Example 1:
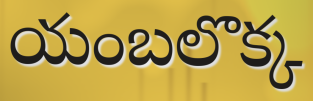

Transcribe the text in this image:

యంబలొక్క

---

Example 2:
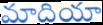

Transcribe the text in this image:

మాదియా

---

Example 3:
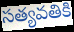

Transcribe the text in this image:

సత్యవతికి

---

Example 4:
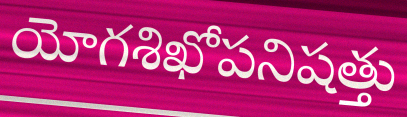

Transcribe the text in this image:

యోగశిఖోపనిషత్తు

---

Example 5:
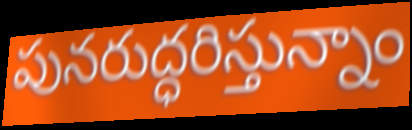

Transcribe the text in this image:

పునరుద్ధరిస్తున్నాం